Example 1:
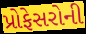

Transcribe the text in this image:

પ્રોફેસરોની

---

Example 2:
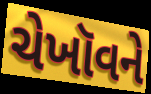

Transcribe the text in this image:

ચેખૉવને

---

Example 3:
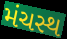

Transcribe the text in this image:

મંચસ્થ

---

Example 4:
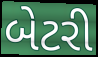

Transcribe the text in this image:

બેટરી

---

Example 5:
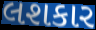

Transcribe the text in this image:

લશકાર